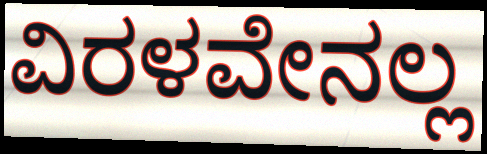
ವಿರಳವೇನಲ್ಲ